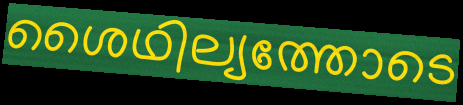
ശൈഥില്യത്തോടെ